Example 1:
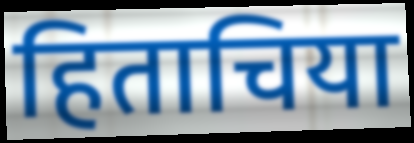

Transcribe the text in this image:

हिताचिया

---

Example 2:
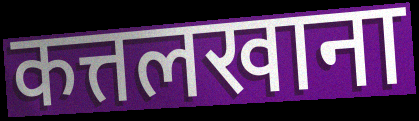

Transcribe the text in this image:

कत्तलखाना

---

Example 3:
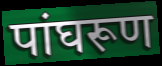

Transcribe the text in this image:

पांघरूण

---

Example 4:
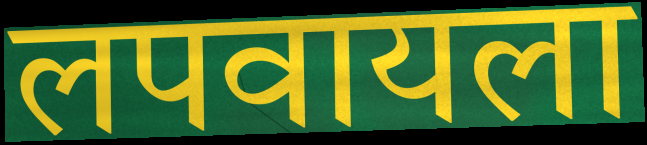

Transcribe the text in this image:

लपवायला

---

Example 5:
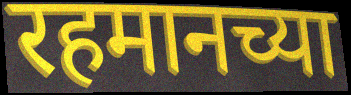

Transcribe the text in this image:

रहमानच्या